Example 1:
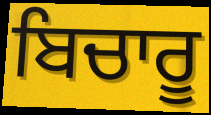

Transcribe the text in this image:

ਬਿਚਾਰੂ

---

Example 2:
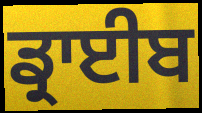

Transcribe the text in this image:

ਡ੍ਰਾਈਬ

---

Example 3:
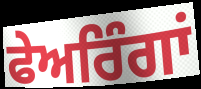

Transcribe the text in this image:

ਫੇਅਰਿੰਗਾਂ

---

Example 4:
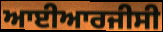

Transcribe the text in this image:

ਆਈਆਰਜੀਸੀ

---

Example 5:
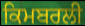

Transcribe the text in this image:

ਕਿਮਬਰਲੀ